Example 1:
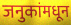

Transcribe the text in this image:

जनुकांमधून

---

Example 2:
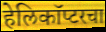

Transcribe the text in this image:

हेलिकॉप्टरचा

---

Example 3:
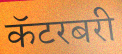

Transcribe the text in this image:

कॅटरबरी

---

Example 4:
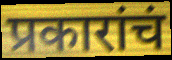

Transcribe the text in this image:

प्रकारांचं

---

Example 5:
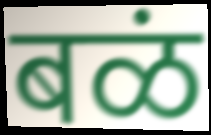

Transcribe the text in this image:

बळं